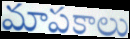
మాపకాలు